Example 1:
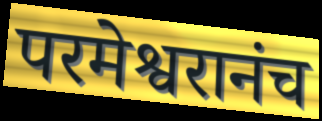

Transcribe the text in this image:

परमेश्वरानंच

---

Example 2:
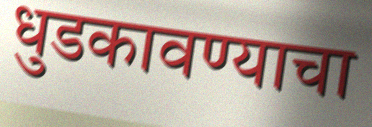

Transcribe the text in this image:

धुडकावण्याचा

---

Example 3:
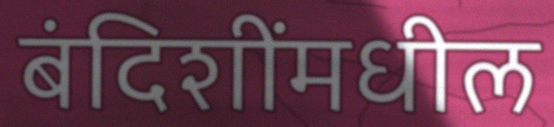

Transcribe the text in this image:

बंदिशींमधील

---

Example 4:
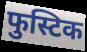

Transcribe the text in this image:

फुस्टिक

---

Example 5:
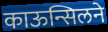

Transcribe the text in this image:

काऊन्सिलने